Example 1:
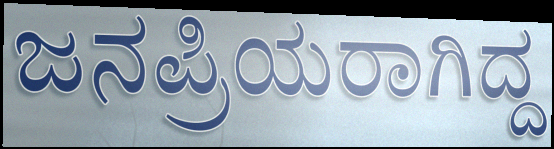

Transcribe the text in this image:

ಜನಪ್ರಿಯರಾಗಿದ್ದ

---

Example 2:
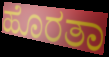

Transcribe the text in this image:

ಹೊರತಾ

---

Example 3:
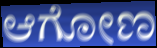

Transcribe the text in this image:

ಆಗೋಣ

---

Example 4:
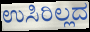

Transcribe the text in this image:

ಉಸಿರಿಲ್ಲದ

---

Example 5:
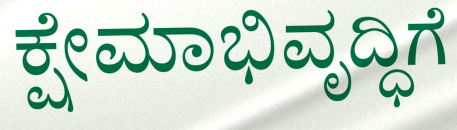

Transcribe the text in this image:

ಕ್ಷೇಮಾಭಿವೃದ್ಧಿಗೆ